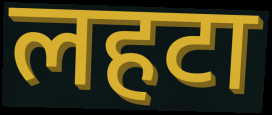
लहटा